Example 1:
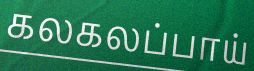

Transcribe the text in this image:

கலகலப்பாய்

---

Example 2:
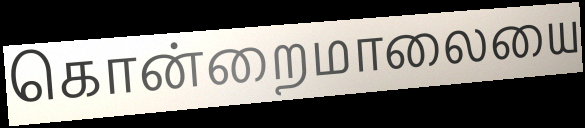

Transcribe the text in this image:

கொன்றைமாலையை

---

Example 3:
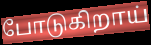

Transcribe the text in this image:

போடுகிறாய்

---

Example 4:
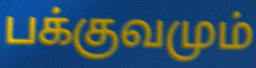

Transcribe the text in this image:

பக்குவமும்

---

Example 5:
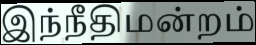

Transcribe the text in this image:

இந்நீதிமன்றம்